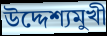
উদ্দেশ্য়মুখী